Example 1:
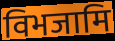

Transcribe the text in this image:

विभजामि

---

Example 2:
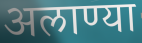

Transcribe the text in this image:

अलाण्या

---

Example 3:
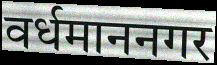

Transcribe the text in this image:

वर्धमाननगर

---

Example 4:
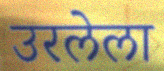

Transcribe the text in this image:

उरलेला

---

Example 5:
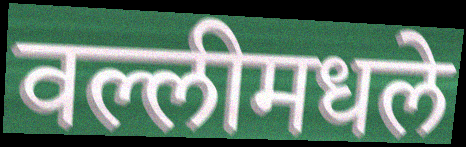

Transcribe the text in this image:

वल्लीमधले